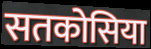
सतकोसिया